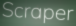
Scraper